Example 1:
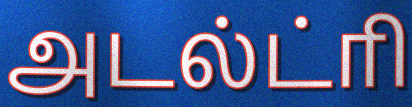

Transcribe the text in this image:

அடல்ட்ரி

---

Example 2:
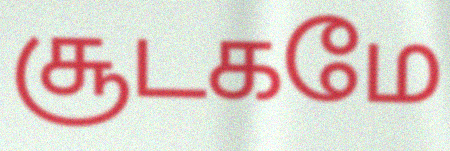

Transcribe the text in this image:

சூடகமே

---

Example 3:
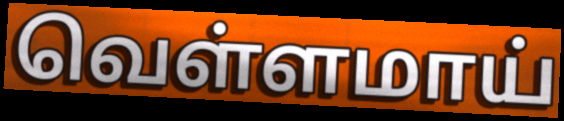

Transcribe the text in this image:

வெள்ளமாய்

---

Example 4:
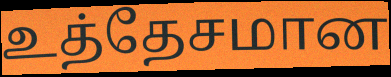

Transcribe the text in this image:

உத்தேசமான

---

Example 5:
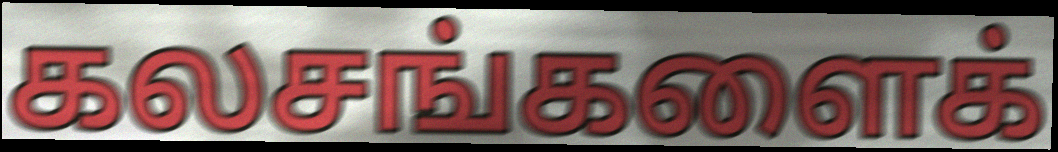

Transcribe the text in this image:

கலசங்களைக்